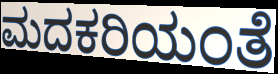
ಮದಕರಿಯಂತೆ